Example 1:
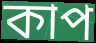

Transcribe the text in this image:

কাপ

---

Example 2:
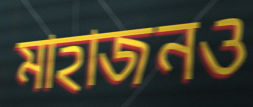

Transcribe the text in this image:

মাহাজনও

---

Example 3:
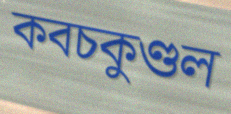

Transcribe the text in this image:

কবচকুণ্ডল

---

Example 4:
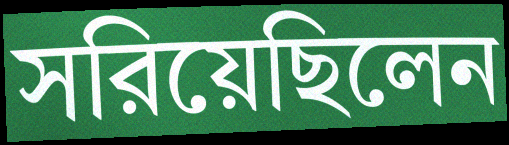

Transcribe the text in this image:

সরিয়েছিলেন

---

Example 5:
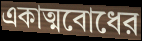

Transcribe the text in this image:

একাত্মবোধের